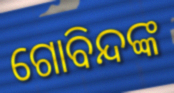
ଗୋବିନ୍ଦଙ୍କ